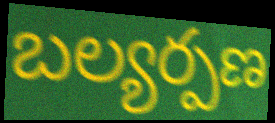
బల్యర్పణ